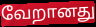
வேறானது